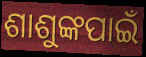
ଶାଶୁଙ୍କପାଇଁ